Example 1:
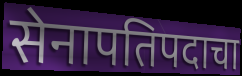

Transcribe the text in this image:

सेनापतिपदाचा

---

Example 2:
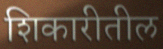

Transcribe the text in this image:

शिकारीतील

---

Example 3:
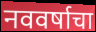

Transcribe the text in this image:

नववर्षाचा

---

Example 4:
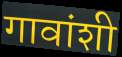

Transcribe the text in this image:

गावांशी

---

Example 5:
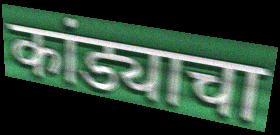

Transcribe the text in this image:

कांड्याचा